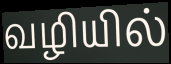
வழியில்